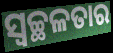
ସ୍ଵଚ୍ଛଳତାର